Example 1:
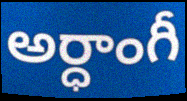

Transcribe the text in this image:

అర్ధాంగీ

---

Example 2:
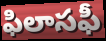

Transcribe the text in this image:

ఫిలాసఫీ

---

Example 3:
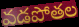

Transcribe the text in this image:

వడపోతల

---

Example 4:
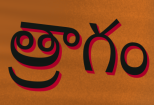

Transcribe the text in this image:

త్రాగం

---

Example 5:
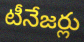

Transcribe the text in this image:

టీనేజర్లు